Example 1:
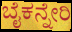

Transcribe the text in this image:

ಬೈಕನ್ನೇರಿ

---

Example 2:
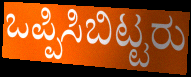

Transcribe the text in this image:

ಒಪ್ಪಿಸಿಬಿಟ್ಟರು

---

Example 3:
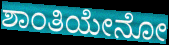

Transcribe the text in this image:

ಶಾಂತಿಯೇನೋ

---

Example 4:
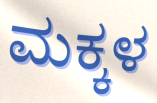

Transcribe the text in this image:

ಮಕ್ಕಳ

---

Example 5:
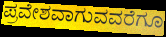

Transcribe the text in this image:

ಪ್ರವೇಶವಾಗುವವರೆಗೂ